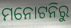
ମନୋଟନିରୁ